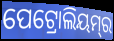
ପେଟ୍ରୋଲିୟମ୍‌ର